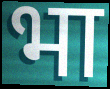
भा